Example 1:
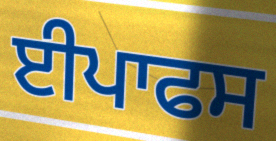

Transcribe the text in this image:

ਈਪਾਫਸ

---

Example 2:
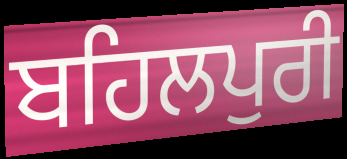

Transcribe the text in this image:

ਬਹਿਲਪੁਰੀ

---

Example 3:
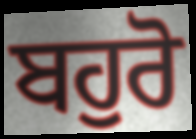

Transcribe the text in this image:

ਬਹੁਰੋ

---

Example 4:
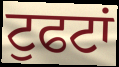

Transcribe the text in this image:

ਟੁਫਟਾਂ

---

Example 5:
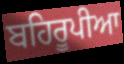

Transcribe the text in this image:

ਬਹਿਰੂਪੀਆ